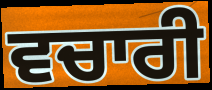
ਵਚਾਰੀ